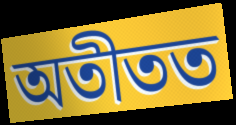
অতীতত